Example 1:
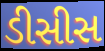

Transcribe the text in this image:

ડીસીસ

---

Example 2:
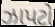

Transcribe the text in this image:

ઝાપટો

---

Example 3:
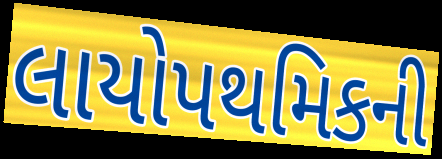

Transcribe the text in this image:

લાયોપથમિકની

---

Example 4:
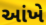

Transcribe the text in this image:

આંખે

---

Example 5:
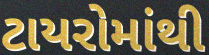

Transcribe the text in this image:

ટાયરોમાંથી